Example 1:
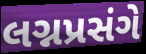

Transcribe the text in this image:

લગ્નપ્રસંગે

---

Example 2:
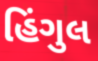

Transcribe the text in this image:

હિંગુલ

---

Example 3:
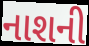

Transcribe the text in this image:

નાશની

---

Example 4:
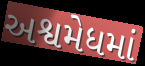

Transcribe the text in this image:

અશ્વમેધમાં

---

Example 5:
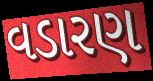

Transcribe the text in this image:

વડારણ